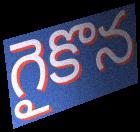
గైకొన